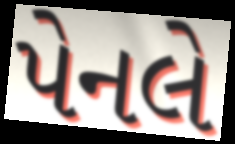
પેનલે